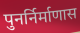
पुनर्निर्माणास